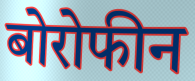
बोरोफीन